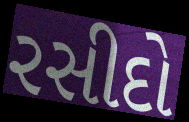
રસીદો